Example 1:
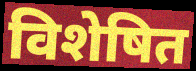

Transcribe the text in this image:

विशेषित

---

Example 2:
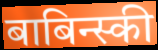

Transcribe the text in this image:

बाबिन्स्की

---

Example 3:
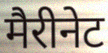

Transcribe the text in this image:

मैरीनेट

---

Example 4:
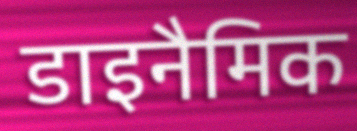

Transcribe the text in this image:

डाइनैमिक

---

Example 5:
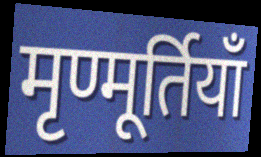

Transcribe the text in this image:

मृण्मूर्तियाँ